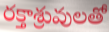
రక్తాశ్రువులతో